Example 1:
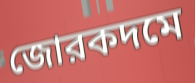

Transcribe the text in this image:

জোরকদমে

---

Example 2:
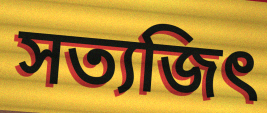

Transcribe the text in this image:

সত্যজিৎ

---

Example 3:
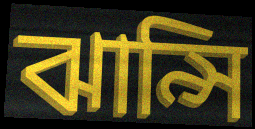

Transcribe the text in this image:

ঝান্সি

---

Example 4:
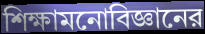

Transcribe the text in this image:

শিক্ষামনোবিজ্ঞানের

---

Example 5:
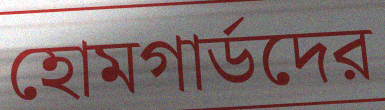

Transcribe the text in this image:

হোমগার্ডদের